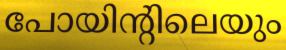
പോയിന്റിലെയും